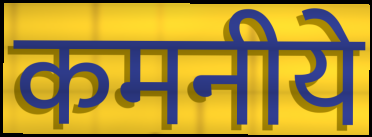
कमनीये